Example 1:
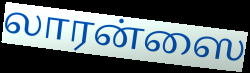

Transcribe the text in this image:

லாரன்ஸை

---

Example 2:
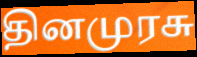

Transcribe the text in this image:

தினமுரசு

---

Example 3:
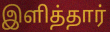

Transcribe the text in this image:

இளித்தார்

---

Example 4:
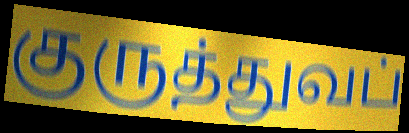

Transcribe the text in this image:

குருத்துவப்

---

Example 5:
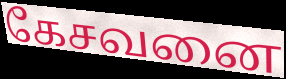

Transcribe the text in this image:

கேசவனை